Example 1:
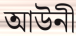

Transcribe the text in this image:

আউনী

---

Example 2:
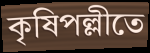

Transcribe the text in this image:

কৃষিপল্লীতে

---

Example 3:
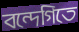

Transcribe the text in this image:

বন্দেগিতে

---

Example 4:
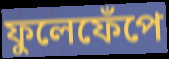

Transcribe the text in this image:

ফুলেফেঁপে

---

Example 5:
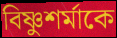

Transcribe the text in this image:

বিষ্ণুশর্মাকে